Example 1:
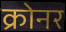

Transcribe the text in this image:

क्रोनर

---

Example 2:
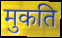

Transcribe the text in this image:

मुकति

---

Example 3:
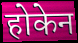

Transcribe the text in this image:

होकेन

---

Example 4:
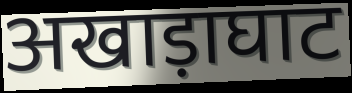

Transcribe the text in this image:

अखाड़ाघाट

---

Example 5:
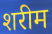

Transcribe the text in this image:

शरीम